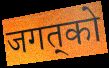
जगत्‌को